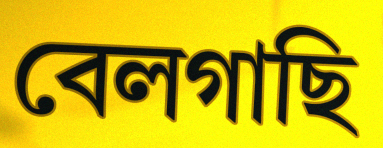
বেলগাছি